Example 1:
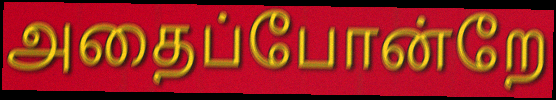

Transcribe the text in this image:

அதைப்போன்றே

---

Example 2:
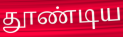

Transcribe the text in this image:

தூண்டிய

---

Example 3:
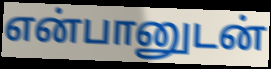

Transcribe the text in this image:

என்பானுடன்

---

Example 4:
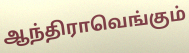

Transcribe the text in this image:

ஆந்திராவெங்கும்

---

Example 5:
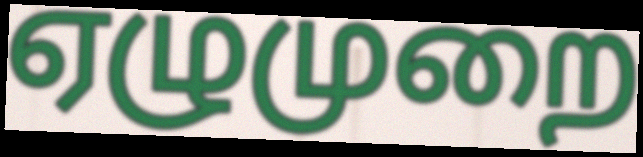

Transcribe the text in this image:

ஏழுமுறை